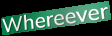
Whereever